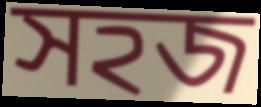
সহজ